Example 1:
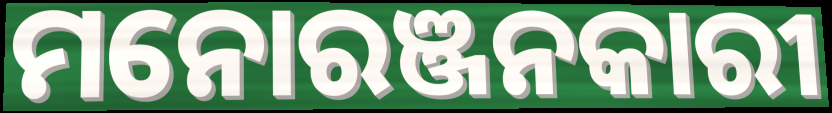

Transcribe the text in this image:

ମନୋରଞ୍ଜନକାରୀ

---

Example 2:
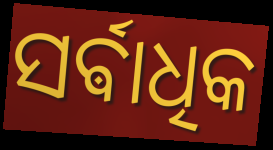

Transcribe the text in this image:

ସର୍ଵାଧିକ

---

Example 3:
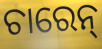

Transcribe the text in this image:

ଚାରେନ୍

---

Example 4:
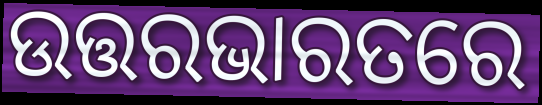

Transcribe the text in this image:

ଉତ୍ତରଭାରତରେ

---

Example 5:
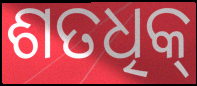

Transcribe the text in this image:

ଶତଧିକ୍